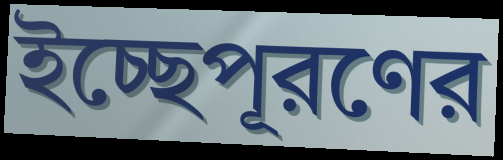
ইচ্ছেপূরণের